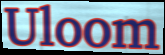
Uloom